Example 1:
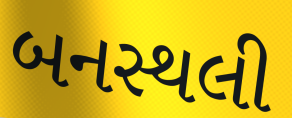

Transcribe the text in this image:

બનસ્થલી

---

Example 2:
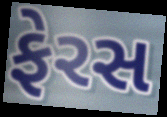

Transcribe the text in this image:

ફેરસ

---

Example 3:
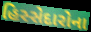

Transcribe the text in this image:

હિસ્સેદારોના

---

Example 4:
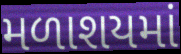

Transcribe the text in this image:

મળાશયમાં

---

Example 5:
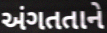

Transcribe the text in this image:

અંગતતાને